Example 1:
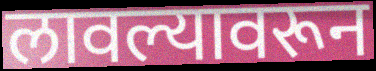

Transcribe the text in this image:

लावल्यावरून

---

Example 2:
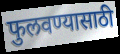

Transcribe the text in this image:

फुलवण्यासाठी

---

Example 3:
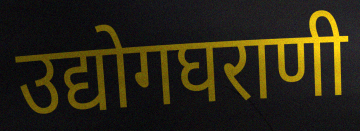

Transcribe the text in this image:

उद्योगघराणी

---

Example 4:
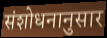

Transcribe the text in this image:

संशोधनानुसार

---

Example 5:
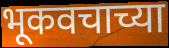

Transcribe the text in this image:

भूकवचाच्या